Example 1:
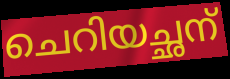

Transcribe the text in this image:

ചെറിയച്ഛന്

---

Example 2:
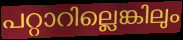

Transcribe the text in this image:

പറ്റാറില്ലെങ്കിലും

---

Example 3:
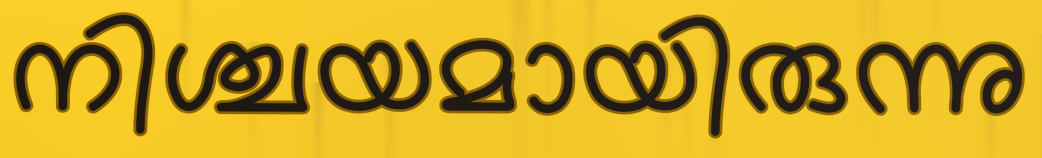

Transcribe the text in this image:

നിശ്ചയമായിരുന്നു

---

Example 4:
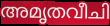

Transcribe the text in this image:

അമൃതവീചി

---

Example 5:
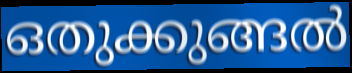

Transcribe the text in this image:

ഒതുക്കുങ്ങൽ